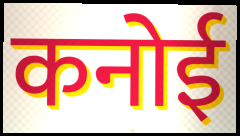
कनोई